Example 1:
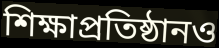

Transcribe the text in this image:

শিক্ষাপ্রতিষ্ঠানও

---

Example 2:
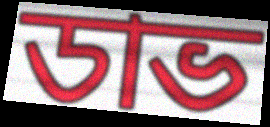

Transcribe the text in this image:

ডাভ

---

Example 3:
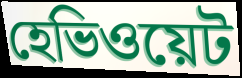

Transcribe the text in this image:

হেভিওয়েট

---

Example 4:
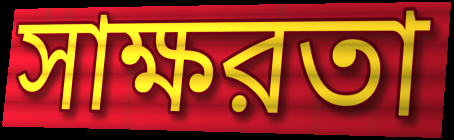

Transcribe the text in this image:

সাক্ষরতা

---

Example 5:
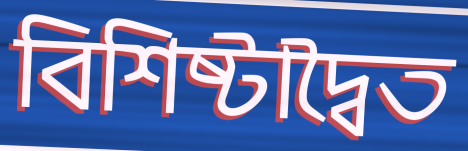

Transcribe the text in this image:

বিশিষ্টাদ্বৈত